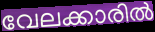
വേലക്കാരിൽ